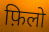
फ़िलो